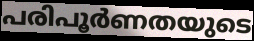
പരിപൂർണതയുടെ